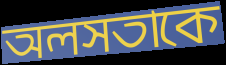
অলসতাকে